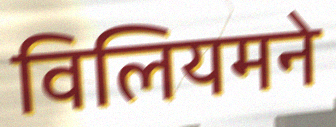
विलियमने